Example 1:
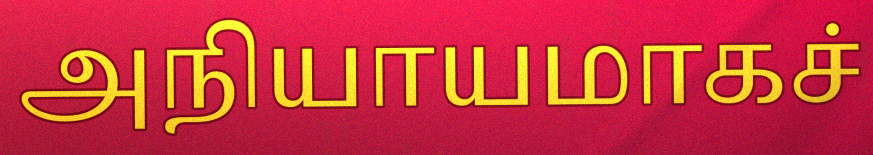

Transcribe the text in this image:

அநியாயமாகச்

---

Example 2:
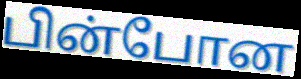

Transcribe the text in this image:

பின்போன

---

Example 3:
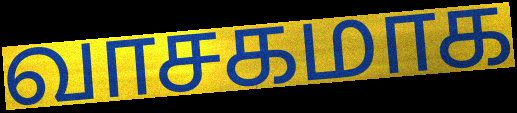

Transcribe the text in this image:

வாசகமாக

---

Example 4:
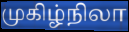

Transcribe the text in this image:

முகிழ்நிலா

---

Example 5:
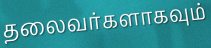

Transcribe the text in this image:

தலைவர்களாகவும்